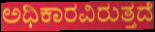
ಅಧಿಕಾರವಿರುತ್ತದೆ